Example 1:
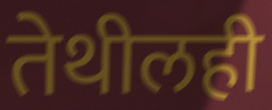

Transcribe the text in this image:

तेथीलही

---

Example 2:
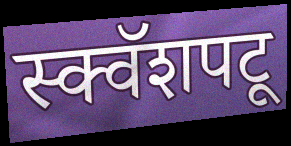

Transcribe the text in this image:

स्क्वॅशपटू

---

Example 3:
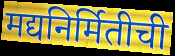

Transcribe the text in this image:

मद्यनिर्मितीची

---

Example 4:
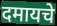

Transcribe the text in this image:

दमायचे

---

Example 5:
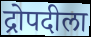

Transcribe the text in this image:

द्रोपदीला